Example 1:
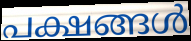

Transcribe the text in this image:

പക്ഷങ്ങൾ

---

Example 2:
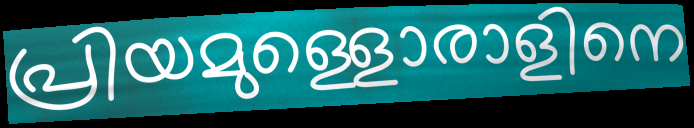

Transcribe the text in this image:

പ്രിയമുള്ളൊരാളിനെ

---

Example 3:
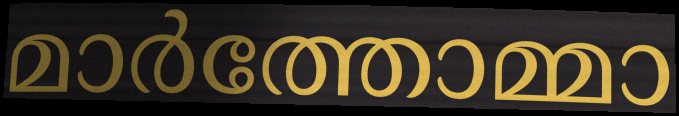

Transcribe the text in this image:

മാർത്തോമ്മാ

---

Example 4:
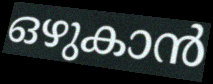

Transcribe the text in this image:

ഒഴുകാൻ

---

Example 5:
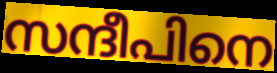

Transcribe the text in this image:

സന്ദീപിനെ